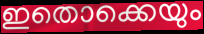
ഇതൊക്കെയും